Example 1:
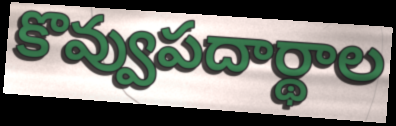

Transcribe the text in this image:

కొవ్వుపదార్థాల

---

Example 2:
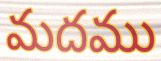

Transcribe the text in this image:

మదము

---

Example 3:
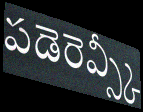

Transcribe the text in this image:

పడెరెవ్స్కీ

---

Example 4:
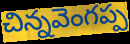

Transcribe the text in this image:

చిన్నవెంగప్ప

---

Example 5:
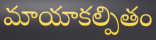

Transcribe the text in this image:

మాయాకల్పితం